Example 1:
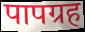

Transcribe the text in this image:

पापग्रह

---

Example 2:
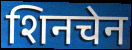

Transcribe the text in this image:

शिनचेन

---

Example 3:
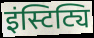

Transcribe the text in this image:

इंस्टिट्यि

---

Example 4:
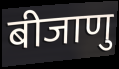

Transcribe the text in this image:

बीजाणु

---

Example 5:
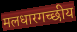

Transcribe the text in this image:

मलधारगच्छीय